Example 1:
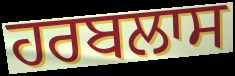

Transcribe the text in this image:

ਹਰਬਲਾਸ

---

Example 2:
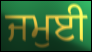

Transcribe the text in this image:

ਜਮੁਈ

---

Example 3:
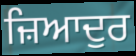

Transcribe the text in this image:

ਜ਼ਿਆਦੁਰ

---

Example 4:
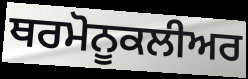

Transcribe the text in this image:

ਥਰਮੋਨੂਕਲੀਅਰ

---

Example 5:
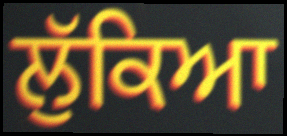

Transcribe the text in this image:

ਲੁੱਕਿਆ